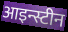
आइन्स्टीन